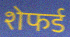
शेफर्ड